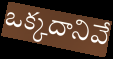
ఒక్కదానివే